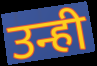
उन्ही